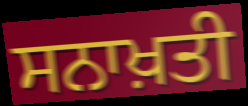
ਸਨਾਖ਼ਤੀ